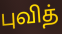
புவித்